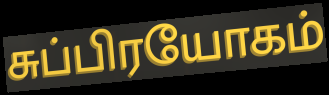
சுப்பிரயோகம்